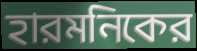
হারমনিকের